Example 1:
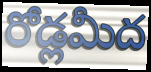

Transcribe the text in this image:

రోడ్లమీద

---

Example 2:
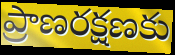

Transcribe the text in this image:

ప్రాణరక్షణకు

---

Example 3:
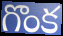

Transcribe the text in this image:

గొంక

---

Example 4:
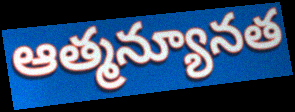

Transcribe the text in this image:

ఆత్మన్యూనత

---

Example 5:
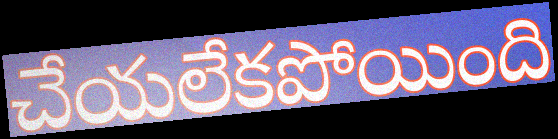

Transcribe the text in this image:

చేయలేకపోయింది